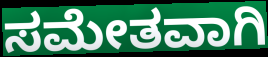
ಸಮೇತವಾಗಿ